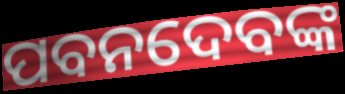
ପବନଦେବଙ୍କ